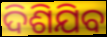
ଦିଶିଯିବ